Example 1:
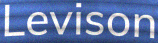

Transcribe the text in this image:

Levison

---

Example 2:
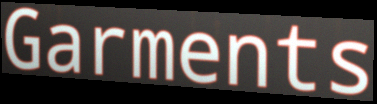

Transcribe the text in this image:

Garments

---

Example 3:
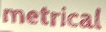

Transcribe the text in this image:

metrical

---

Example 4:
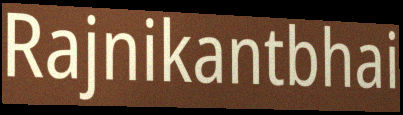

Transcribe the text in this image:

Rajnikantbhai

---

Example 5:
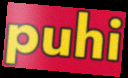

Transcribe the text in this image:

puhi